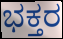
ಭಕ್ತರ